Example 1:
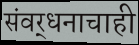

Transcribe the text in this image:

संवर्धनाचाही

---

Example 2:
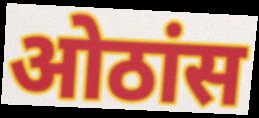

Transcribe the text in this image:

ओठांस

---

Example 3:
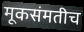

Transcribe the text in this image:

मूकसंमतीच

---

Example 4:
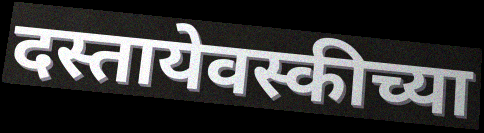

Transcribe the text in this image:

दस्तायेवस्कीच्या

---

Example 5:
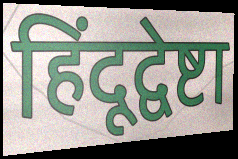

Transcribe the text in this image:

हिंदूद्वेष्टा